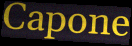
Capone